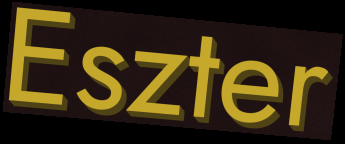
Eszter